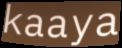
kaaya